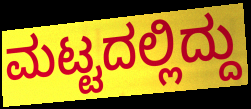
ಮಟ್ಟದಲ್ಲಿದ್ದು